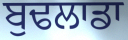
ਬੁਢਲਾਡਾ